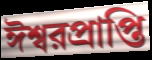
ঈশ্বরপ্রাপ্তি